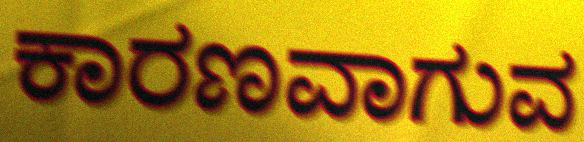
ಕಾರಣವಾಗುವ